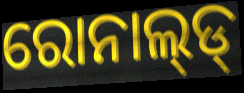
ରୋନାଲ୍‌ଡ୍